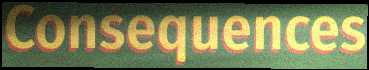
Consequences